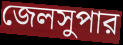
জেলসুপার